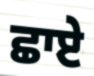
ਛਾਏ